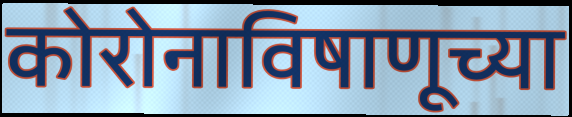
कोरोनाविषाणूच्या